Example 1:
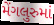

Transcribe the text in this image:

મેંગલુરુમાં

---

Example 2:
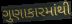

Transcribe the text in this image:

ગુણાકારમાંથી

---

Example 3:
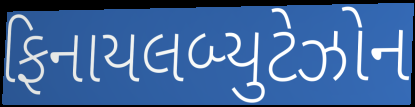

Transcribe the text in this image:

ફિનાયલબ્યુટેઝોન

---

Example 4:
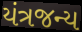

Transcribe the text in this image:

યંત્રજન્ય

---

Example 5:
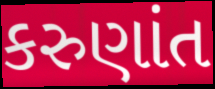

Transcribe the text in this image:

કરુણાંત